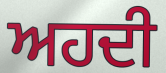
ਅਹਦੀ